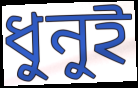
ধুনুই